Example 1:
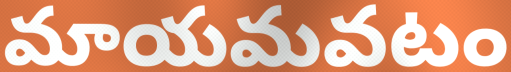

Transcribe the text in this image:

మాయమవటం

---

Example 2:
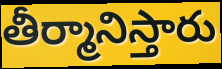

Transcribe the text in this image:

తీర్మానిస్తారు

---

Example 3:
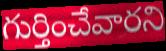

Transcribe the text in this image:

గుర్తించేవారని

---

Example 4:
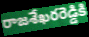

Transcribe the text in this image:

రాజశేఖరరెడ్డికి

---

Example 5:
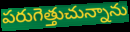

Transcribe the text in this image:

పరుగెత్తుచున్నాను